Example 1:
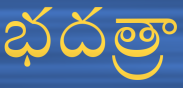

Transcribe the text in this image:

భదత్రా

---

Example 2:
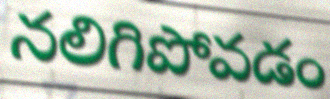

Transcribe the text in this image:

నలిగిపోవడం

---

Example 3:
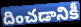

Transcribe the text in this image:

దించడానికీ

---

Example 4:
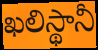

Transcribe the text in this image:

ఖలిస్థానీ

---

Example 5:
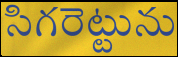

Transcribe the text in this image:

సిగరెట్టును